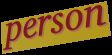
person